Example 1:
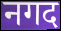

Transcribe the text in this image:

नगद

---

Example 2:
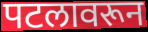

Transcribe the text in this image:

पटलावरून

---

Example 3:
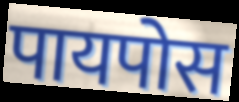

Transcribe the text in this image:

पायपोस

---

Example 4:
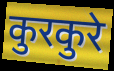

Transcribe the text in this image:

कुरकुरे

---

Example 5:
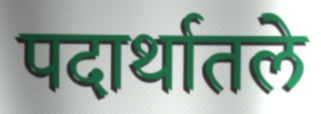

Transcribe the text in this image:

पदार्थातले